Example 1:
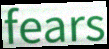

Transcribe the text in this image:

fears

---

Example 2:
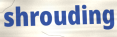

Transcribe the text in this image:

shrouding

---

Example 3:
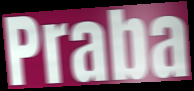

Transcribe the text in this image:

Praba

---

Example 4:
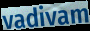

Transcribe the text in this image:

vadivam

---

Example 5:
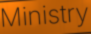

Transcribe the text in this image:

Ministry